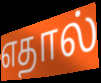
எதால்